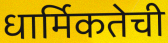
धार्मिकतेची